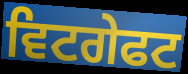
ਵਿਟਗੇਫਟ